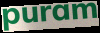
puram